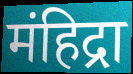
मंहिद्रा